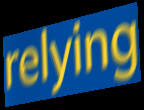
relying